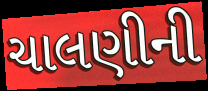
ચાલણીની